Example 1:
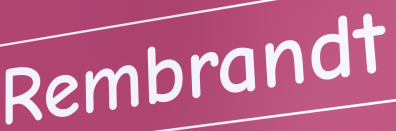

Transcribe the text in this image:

Rembrandt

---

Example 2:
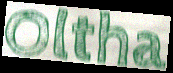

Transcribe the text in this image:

Oltha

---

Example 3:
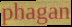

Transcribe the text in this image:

phagan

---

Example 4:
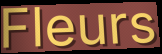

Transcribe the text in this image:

Fleurs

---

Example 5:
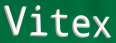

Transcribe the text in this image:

Vitex